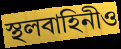
স্থলবাহিনীও